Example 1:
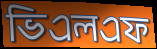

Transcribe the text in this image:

ভিএলএফ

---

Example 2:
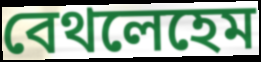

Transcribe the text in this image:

বেথলেহেম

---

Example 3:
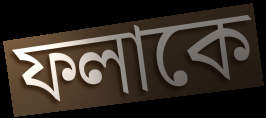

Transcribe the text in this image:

ফলাকে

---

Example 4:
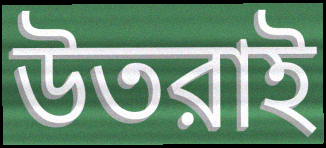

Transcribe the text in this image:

উতরাই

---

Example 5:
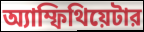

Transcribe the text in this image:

অ্যাম্ফিথিয়েটার